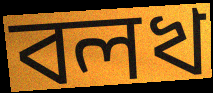
বলখ